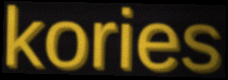
kories